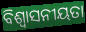
ବିଶ୍ୱାସନୀୟତା